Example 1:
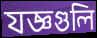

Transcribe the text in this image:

যজ্ঞগুলি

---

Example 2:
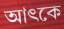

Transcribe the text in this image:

আৎকে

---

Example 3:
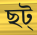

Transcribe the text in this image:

ছট্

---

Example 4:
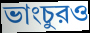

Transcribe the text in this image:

ভাংচুরও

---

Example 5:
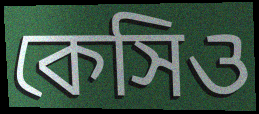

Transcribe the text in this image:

কেসিও